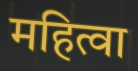
महित्वा